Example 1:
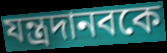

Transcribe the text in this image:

যন্ত্রদানবকে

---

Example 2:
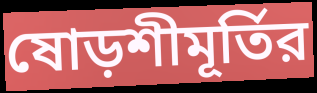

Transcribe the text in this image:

ষোড়শীমূর্তির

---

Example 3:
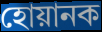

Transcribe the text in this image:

হোয়ানক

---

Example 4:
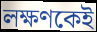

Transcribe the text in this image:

লক্ষণকেই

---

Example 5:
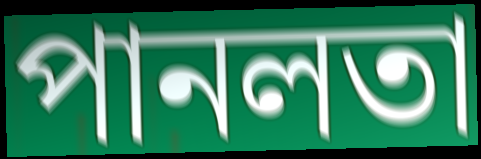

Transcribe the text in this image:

পানলতা